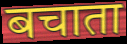
बचाता